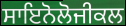
ਸਾਇਨੋਲੋਜੀਕਲ